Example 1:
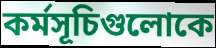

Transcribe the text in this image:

কর্মসূচিগুলোকে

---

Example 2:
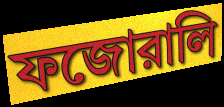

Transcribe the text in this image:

ফজোরালি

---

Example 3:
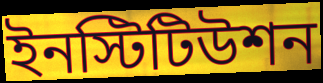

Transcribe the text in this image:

ইনস্টিটিউশন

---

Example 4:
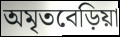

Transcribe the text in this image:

অমৃতবেড়িয়া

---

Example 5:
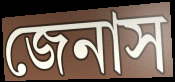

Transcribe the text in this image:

জেনাস